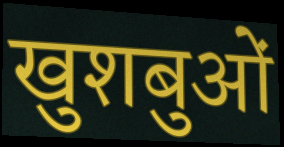
खुशबुओं